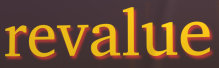
revalue